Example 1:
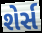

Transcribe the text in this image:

શેર્સ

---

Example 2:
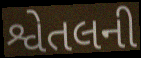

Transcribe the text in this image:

શ્વેતલની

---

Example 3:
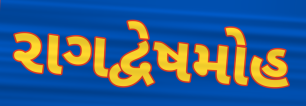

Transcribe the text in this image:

રાગદ્વેષમોહ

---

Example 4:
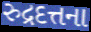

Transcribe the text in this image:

રુદ્રદત્તના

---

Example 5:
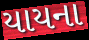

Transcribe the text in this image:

યાયના